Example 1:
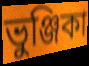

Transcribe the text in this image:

ভুঞ্জিকা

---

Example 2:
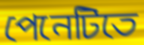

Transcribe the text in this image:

পেনেটিতে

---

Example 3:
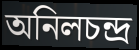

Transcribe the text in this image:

অনিলচন্দ্র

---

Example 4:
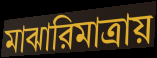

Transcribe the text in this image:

মাঝারিমাত্রায়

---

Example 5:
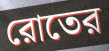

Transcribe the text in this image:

রোতের